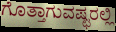
ಗೊತ್ತಾಗುವಷ್ಟರಲ್ಲಿ